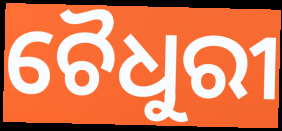
ଚୈଧୁରୀ